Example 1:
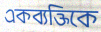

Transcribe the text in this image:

একব্যক্তিকে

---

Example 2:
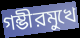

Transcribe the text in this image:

গম্ভীরমুখে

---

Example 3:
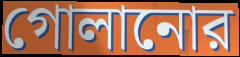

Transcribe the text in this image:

গোলানোর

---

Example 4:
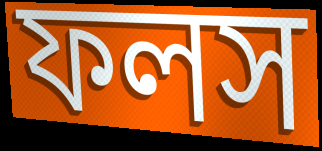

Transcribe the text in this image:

ফলস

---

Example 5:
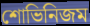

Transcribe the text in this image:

শোভিনিজম